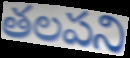
తలపని